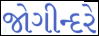
જોગીન્દરે